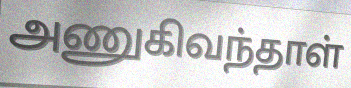
அணுகிவந்தாள்